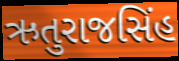
ઋતુરાજસિંહ